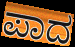
ಪಾದ